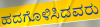
ಹದಗೊಳಿಸಿದವರು